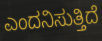
ಎಂದನಿಸುತ್ತಿದೆ